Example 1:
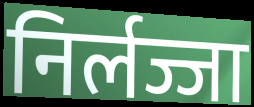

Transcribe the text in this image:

निर्लज्जा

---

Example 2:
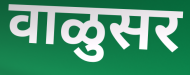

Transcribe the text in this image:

वाळुसर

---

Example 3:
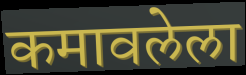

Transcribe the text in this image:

कमावलेला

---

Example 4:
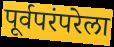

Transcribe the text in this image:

पूर्वपरंपरेला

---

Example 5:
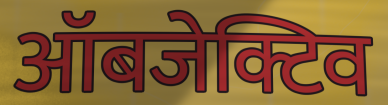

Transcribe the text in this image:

ऑबजेक्टिव